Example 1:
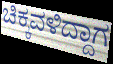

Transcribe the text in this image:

ಚಿಕ್ಕವಳಿದ್ದಾಗ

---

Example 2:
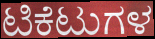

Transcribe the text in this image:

ಟಿಕೆಟುಗಳ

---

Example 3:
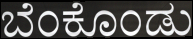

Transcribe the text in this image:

ಬೆಂಕೊಂಡು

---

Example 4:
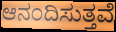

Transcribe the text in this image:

ಆನಂದಿಸುತ್ತವೆ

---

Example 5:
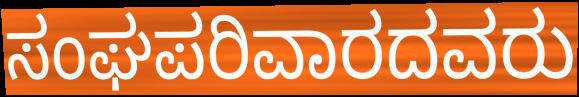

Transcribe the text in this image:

ಸಂಘಪರಿವಾರದವರು